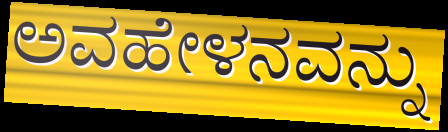
ಅವಹೇಳನವನ್ನು